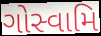
ગોસ્વામિ